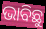
ଭାବିଛୁ